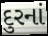
દુરનાં